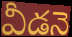
వీడనె